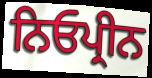
ਨਿਓਪ੍ਰੀਨ